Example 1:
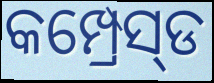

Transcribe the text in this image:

କମ୍ପ୍ରେସ୍‌ଡ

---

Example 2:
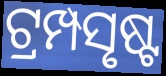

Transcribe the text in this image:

ଟ୍ରମ୍ପସୃଷ୍ଟ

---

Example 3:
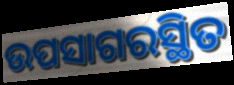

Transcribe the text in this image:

ଉପସାଗରସ୍ଥିତ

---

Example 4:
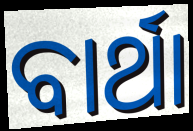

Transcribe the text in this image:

ବାର୍ଥା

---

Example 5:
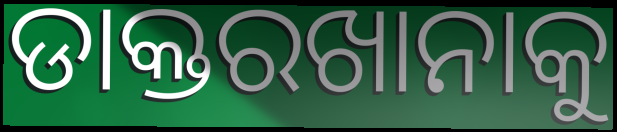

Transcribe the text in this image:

ଡାକ୍ତରଖାନାକୁ